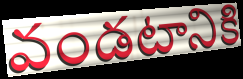
వండటానికి